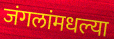
जंगलांमधल्या